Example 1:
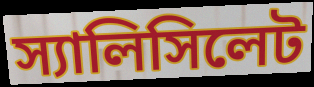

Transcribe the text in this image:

স্যালিসিলেট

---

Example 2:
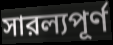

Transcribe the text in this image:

সারল্যপূর্ণ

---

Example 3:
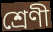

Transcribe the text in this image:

শ্রেণী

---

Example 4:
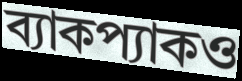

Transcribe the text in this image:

ব্যাকপ্যাকও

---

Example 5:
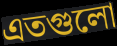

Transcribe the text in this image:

এতগুলো